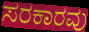
ಸರಕಾರವು